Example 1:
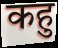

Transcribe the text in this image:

कहु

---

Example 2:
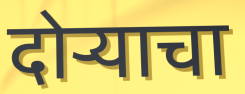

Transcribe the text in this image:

दोर्‍याचा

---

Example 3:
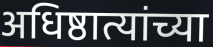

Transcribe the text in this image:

अधिष्ठात्यांच्या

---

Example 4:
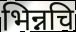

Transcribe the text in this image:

भिन्नचि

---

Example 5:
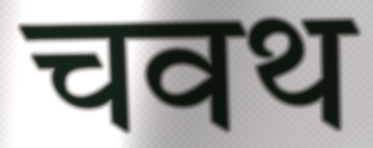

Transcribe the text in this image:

चवथ